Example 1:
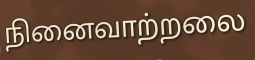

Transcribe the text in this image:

நினைவாற்றலை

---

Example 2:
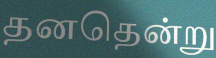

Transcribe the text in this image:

தனதென்று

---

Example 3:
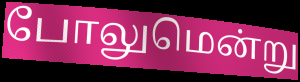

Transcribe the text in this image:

போலுமென்று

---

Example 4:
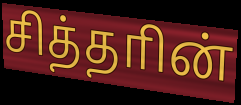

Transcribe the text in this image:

சித்தரின்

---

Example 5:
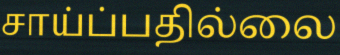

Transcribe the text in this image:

சாய்ப்பதில்லை